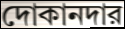
দোকানদার